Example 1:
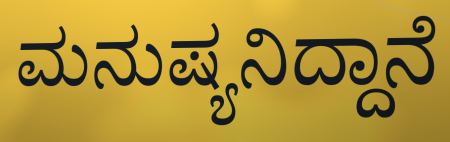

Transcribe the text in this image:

ಮನುಷ್ಯನಿದ್ದಾನೆ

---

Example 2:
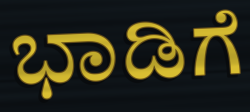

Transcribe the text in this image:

ಭಾಡಿಗೆ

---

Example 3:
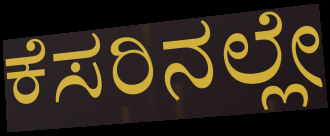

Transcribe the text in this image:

ಕೆಸರಿನಲ್ಲೇ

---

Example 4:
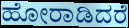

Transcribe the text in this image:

ಹೋರಾಡಿದರೆ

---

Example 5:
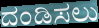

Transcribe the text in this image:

ದಂಡಿಸಲು